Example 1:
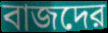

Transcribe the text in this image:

বাজদের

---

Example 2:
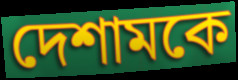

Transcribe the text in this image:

দেশামকে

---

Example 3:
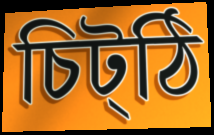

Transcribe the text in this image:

চিট্ঠি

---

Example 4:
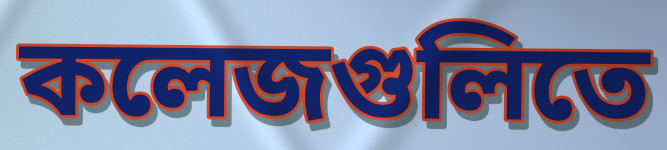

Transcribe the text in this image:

কলেজগুলিতে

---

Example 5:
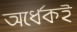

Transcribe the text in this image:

অর্ধেকই